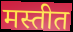
मस्तीत